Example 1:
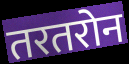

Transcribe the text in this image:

तरतरोन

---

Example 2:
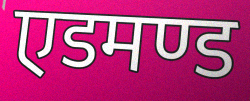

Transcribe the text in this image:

एडमण्ड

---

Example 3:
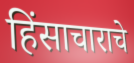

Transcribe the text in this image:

हिंसाचाराचे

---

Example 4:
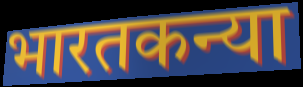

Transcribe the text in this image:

भारतकन्या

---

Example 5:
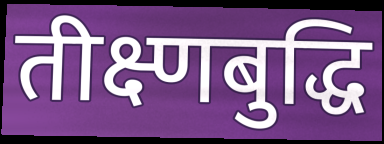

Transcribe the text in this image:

तीक्ष्णबुद्धि